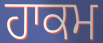
ਹਾਕਮ